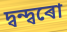
দ্বন্দ্বৰো